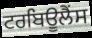
ਟਰਬਿਊਲੈਂਸ